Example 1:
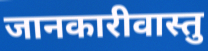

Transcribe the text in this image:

जानकारीवास्तु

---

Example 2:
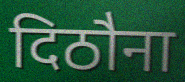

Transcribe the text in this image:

दिठौना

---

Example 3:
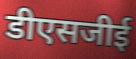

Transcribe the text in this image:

डीएसजीई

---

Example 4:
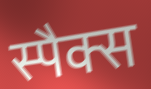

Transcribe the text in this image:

स्पैक्स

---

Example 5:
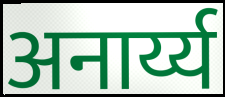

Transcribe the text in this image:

अनार्य्य